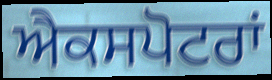
ਐਕਸਪੋਟਰਾਂ